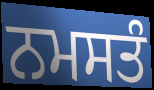
ਨਮਸਤੰ